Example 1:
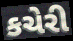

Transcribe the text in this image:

કચેરી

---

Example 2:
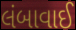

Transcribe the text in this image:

લંબાવાઈ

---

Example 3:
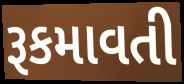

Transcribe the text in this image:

રૂકમાવતી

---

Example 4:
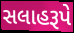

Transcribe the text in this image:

સલાહરૂપે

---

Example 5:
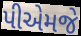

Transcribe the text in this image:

પીએમજે